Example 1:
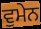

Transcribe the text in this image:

ਵੁਮੇਨ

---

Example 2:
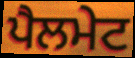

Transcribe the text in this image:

ਪੈਲਮੇਟ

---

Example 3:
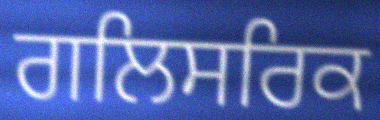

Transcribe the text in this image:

ਗਲਿਸਰਿਕ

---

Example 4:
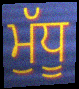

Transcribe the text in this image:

ਮੁੱਧੂ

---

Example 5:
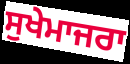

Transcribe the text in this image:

ਸੁਖੇਮਾਜਰਾ